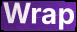
Wrap